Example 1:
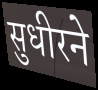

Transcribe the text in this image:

सुधीरने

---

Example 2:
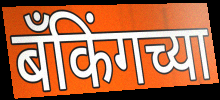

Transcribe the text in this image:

बँकिंगच्या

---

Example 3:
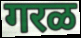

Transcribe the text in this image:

गरळ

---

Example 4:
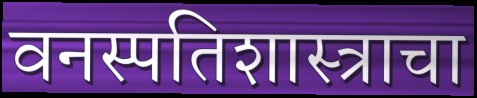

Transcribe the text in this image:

वनस्पतिशास्त्राचा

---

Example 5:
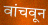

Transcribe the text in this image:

वांचवून